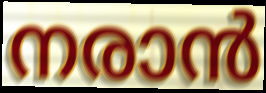
നരാൻ